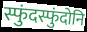
स्फुंदस्फुंदोनि